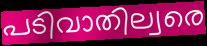
പടിവാതില്വരെ